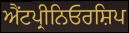
ਐਂਟਪ੍ਰੀਨਿਓਰਸ਼ਿਪ